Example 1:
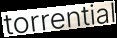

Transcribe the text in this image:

torrential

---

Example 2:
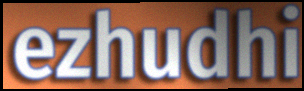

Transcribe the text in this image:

ezhudhi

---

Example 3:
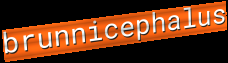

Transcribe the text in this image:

brunnicephalus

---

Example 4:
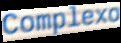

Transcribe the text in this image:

Complexo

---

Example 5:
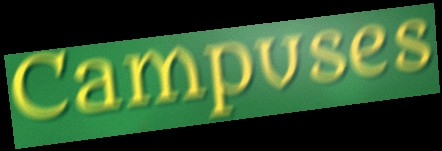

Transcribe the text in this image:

Campuses